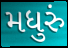
મધુરું